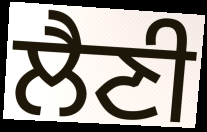
ਲੈਣੀ